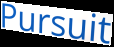
Pursuit